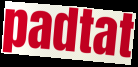
padtat